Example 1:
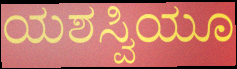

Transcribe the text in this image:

ಯಶಸ್ವಿಯೂ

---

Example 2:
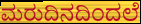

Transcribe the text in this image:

ಮರುದಿನದಿಂದಲೆ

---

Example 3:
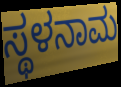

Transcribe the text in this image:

ಸ್ಥಳನಾಮ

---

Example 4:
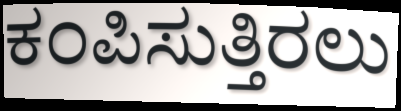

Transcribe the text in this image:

ಕಂಪಿಸುತ್ತಿರಲು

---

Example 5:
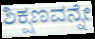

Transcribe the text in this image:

ಶಿಕ್ಷಣವನ್ನೇ